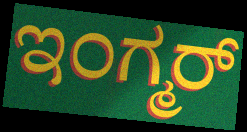
ಇಂಗ್ಮರ್